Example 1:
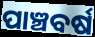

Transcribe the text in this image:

ପାଞ୍ଚବର୍ଷ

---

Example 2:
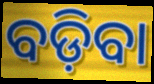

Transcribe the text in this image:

ବଡ଼ିବା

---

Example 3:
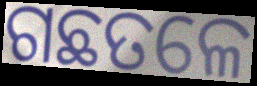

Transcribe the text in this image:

ଗଛତଳେ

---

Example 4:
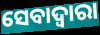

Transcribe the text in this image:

ସେବାଦ୍ବାରା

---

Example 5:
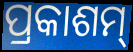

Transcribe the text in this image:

ପ୍ରକାଶମ୍